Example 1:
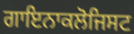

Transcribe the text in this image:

ਗਾਇਨਾਕਲੋਜਿਸਟ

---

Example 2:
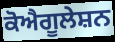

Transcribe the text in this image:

ਕੋਐਗੂਲੇਸ਼ਨ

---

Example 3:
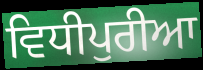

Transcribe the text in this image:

ਵਿਧੀਪੁਰੀਆ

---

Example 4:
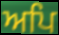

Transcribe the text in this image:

ਅਪਿ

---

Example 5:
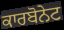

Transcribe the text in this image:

ਕਾਰਬੋਨੇਟ